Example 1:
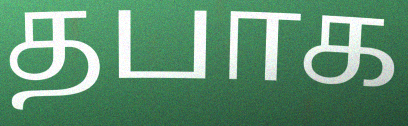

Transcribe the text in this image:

தபாக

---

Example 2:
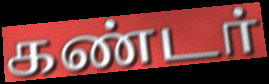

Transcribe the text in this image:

கண்டர்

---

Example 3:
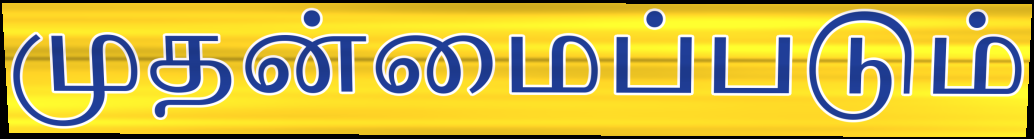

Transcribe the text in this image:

முதன்மைப்படும்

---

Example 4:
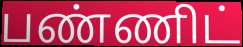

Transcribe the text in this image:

பண்ணிட்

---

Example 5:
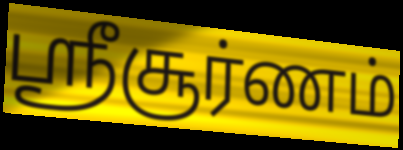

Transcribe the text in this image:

ஸ்ரீசூர்ணம்